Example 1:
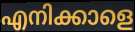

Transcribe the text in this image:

എനിക്കാളെ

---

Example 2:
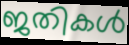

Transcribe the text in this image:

ജതികൾ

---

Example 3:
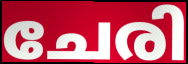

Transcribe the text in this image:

ചേരി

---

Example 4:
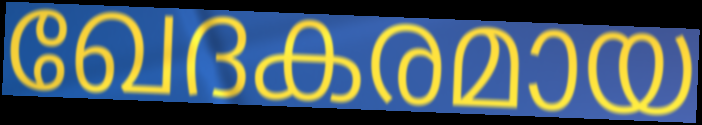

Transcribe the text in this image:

ഖേദകരമായ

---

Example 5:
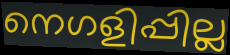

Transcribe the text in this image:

നെഗളിപ്പില്ല